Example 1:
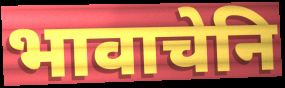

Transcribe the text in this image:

भावाचेनि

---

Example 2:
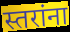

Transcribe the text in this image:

स्तरांना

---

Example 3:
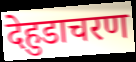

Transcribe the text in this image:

देहुडाचरण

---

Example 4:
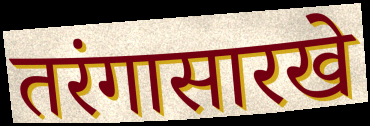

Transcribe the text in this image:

तरंगासारखे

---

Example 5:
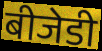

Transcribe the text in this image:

बीजेडी